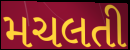
મચલતી